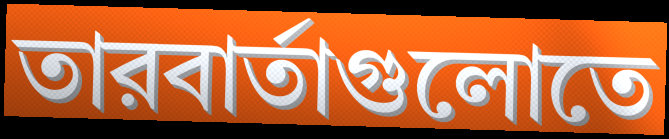
তারবার্তাগুলোতে